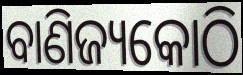
ବାଣିଜ୍ୟକୋଠି